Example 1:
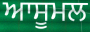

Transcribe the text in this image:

ਆਸੂਮਲ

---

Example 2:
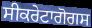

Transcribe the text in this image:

ਸੀਕਰੇਟਾਗੋਗਸ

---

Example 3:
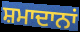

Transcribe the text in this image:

ਸ਼ਮਾਦਾਨਾਂ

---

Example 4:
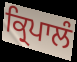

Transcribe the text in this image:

ਕ੍ਰਿਪਾਲੰ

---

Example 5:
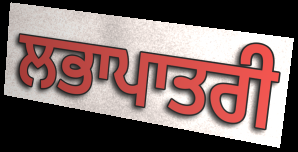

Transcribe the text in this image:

ਲਭਾਪਾਤਰੀ